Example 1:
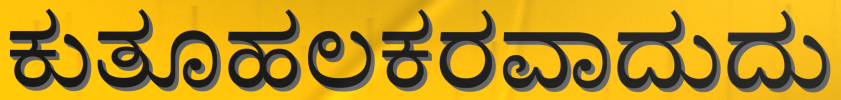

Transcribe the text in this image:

ಕುತೂಹಲಕರವಾದುದು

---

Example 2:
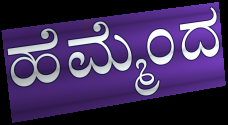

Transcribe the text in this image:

ಹೆಮ್ಮೆಂದ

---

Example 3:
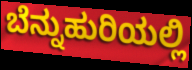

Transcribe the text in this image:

ಬೆನ್ನುಹುರಿಯಲ್ಲಿ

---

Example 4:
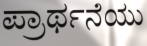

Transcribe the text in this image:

ಪ್ರಾರ್ಥನೆಯು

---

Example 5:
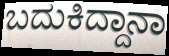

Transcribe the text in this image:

ಬದುಕಿದ್ದಾನಾ